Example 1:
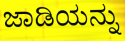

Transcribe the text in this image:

ಜಾಡಿಯನ್ನು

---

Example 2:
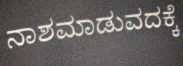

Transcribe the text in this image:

ನಾಶಮಾಡುವದಕ್ಕೆ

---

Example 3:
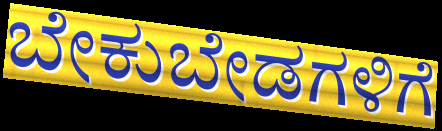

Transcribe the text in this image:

ಬೇಕುಬೇಡಗಳಿಗೆ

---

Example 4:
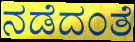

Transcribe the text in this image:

ನಡೆದಂತೆ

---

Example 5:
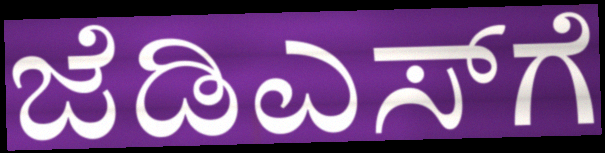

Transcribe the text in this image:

ಜೆಡಿಎಸ್‌ಗೆ